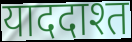
याददाश्त